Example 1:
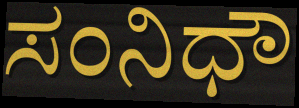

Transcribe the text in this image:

ಸಂನಿಧೌ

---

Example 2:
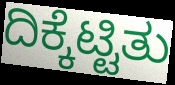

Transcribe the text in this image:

ದಿಕ್ಕೆಟ್ಟಿತು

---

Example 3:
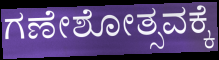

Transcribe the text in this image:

ಗಣೇಶೋತ್ಸವಕ್ಕೆ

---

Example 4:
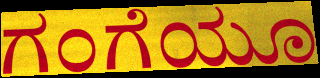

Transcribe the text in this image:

ಗಂಗೆಯೂ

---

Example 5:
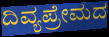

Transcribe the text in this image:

ದಿವ್ಯಪ್ರೇಮದ